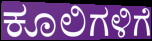
ಕೂಲಿಗಳಿಗೆ